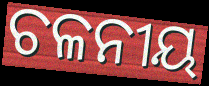
ଚଳନୀୟ